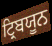
ਟ੍ਰਿਬਯੂਨ